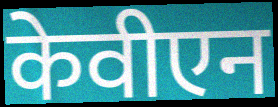
केवीएन